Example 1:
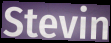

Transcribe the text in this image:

Stevin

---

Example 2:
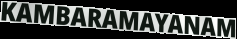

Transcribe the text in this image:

KAMBARAMAYANAM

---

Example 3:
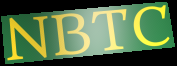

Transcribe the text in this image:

NBTC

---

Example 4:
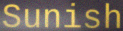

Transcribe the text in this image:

Sunish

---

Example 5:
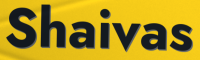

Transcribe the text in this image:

Shaivas